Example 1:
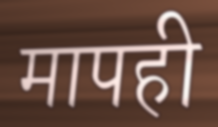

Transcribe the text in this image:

मापही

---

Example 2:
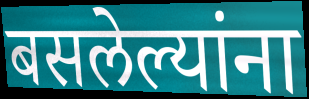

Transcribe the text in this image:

बसलेल्यांना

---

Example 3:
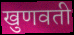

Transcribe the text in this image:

खुणवती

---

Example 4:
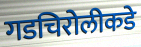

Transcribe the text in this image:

गडचिरोलीकडे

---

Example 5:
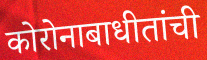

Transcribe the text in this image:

कोरोनाबाधीतांची